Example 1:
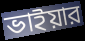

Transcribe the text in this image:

ভাইয়ার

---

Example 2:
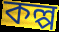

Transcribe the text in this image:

কল্প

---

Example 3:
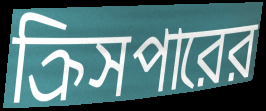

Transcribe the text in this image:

ক্রিসপারের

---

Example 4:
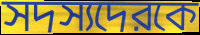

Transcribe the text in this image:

সদস্যদেরকে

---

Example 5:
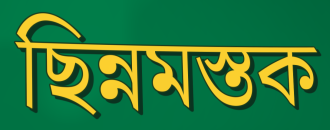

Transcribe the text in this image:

ছিন্নমস্তক